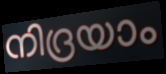
നിദ്രയാം